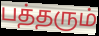
பத்தரும்